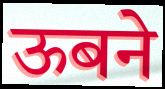
ऊबने